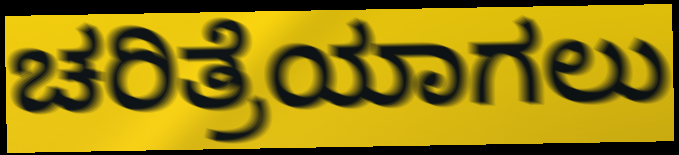
ಚರಿತ್ರೆಯಾಗಲು